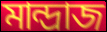
মান্দ্রাজ